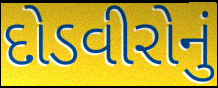
દોડવીરોનું